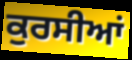
ਕੁਰਸੀਆਂ